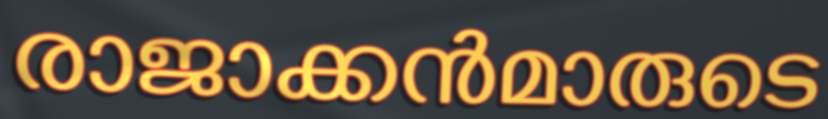
രാജാക്കൻമാരുടെ